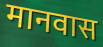
मानवास